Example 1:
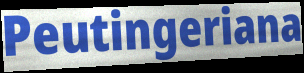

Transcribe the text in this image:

Peutingeriana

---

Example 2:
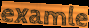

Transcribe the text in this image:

examle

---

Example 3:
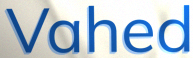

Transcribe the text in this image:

Vahed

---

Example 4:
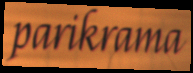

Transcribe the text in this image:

parikrama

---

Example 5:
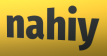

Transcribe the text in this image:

nahiy